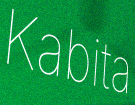
Kabita